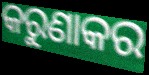
କରୁଣାକର